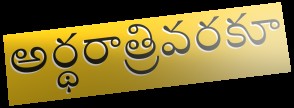
అర్థరాత్రివరకూ